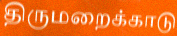
திருமறைக்காடு